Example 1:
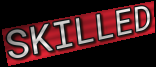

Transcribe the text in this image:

SKILLED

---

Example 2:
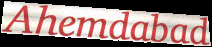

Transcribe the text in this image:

Ahemdabad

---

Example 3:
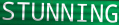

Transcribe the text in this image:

STUNNING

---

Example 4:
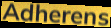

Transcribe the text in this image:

Adherens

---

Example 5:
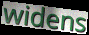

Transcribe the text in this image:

widens